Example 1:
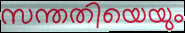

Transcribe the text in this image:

സന്തതിയെയും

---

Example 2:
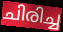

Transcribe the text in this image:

ചിരിച്ച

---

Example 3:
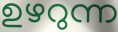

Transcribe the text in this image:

ഉഴറുന്ന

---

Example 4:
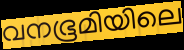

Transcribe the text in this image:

വനഭൂമിയിലെ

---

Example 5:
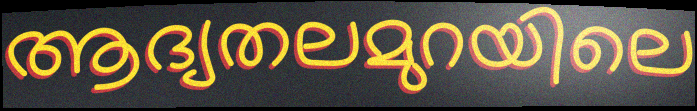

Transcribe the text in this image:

ആദ്യതലമുറയിലെ